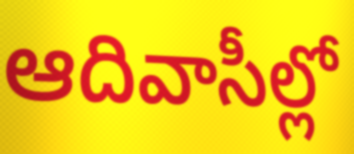
ఆదివాసీల్లో